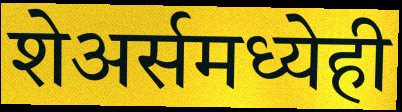
शेअर्समध्येही